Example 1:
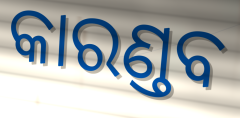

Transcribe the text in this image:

କାରଣ୍ଡବ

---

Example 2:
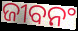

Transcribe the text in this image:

ଜୀବନଂ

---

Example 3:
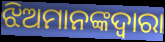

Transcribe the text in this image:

ଝିଅମାନଙ୍କଦ୍ଵାରା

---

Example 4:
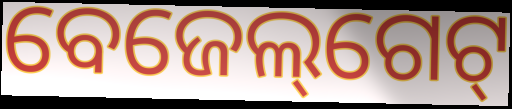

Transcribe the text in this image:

ବେଜେଲ୍‌ଗେଟ୍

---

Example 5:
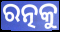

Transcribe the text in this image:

ରତ୍ନକୁ